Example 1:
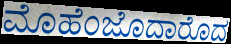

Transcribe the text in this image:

ಮೊಹೆಂಜೊದಾರೊದ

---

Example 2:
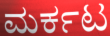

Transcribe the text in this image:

ಮರ್ಕಟ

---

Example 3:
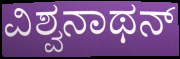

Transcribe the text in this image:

ವಿಶ್ವನಾಥನ್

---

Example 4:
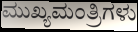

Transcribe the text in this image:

ಮುಖ್ಯಮಂತ್ರಿಗಳು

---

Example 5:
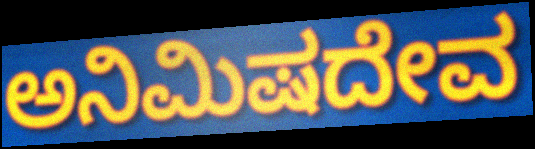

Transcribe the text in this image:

ಅನಿಮಿಷದೇವ